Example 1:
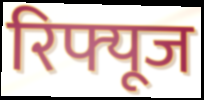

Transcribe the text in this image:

रिफ्यूज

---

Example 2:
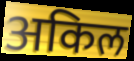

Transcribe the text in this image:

अकिल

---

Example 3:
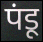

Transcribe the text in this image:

पंडू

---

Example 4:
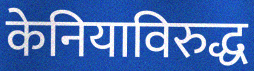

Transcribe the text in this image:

केनियाविरुद्ध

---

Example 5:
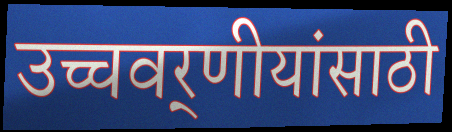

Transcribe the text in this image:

उच्चवर्णीयांसाठी